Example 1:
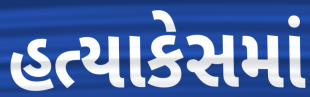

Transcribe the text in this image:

હત્યાકેસમાં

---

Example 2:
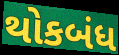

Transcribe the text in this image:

થોકબંધ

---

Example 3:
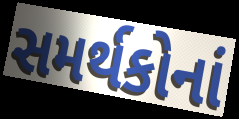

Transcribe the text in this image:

સમર્થકોનાં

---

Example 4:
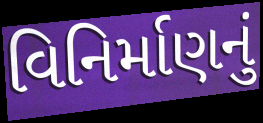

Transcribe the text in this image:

વિનિર્માણનું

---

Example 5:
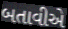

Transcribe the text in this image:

બતાવીએ